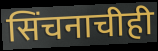
सिंचनाचीही